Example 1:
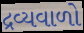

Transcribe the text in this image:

દ્રવ્યવાળો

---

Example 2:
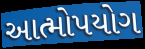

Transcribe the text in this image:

આત્મોપયોગ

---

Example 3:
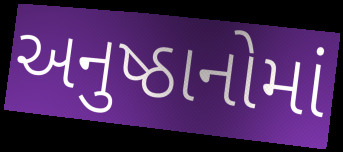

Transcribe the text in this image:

અનુષ્ઠાનોમાં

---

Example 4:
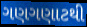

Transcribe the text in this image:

ગણગણાટથી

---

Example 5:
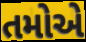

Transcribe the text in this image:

તમોએ